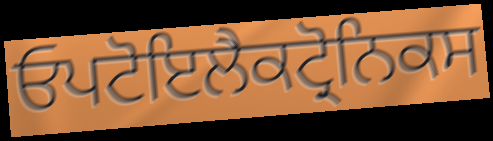
ਓਪਟੋਇਲੈਕਟ੍ਰੋਨਿਕਸ